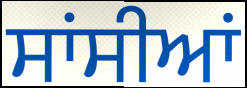
ਸਾਂਸੀਆਂ